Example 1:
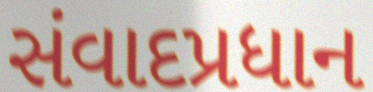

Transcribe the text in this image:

સંવાદપ્રધાન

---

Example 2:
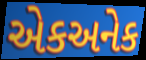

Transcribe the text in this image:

એકઅનેક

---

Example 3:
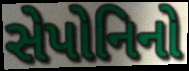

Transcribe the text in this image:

સેપોનિનો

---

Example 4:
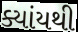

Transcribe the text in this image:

ક્યાંયથી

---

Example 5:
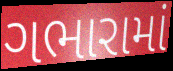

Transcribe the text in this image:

ગભારામાં